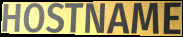
HOSTNAME